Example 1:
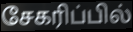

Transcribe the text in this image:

சேகரிப்பில்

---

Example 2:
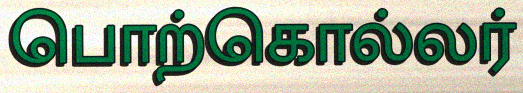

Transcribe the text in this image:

பொற்கொல்லர்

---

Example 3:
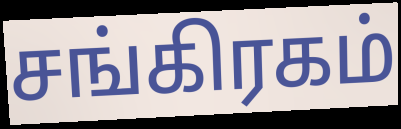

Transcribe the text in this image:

சங்கிரகம்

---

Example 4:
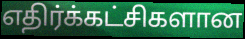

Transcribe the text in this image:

எதிர்க்கட்சிகளான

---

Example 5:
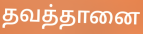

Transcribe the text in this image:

தவத்தானை